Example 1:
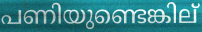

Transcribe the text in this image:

പണിയുണ്ടെങ്കില്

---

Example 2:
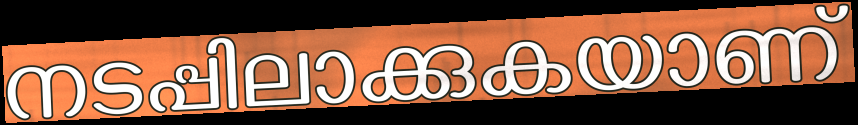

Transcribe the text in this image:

നടപ്പിലാക്കുകയാണ്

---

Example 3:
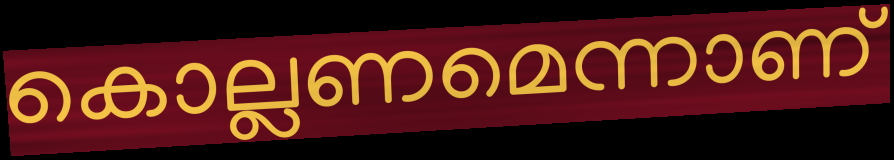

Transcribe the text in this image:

കൊല്ലണമെന്നാണ്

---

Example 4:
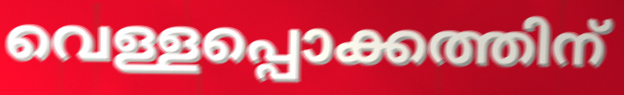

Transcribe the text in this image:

വെള്ളപ്പൊക്കത്തിന്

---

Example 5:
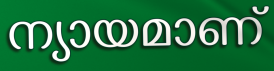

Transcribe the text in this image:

ന്യായമാണ്